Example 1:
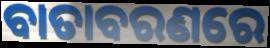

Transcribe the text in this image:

ବାତାବରଣରେ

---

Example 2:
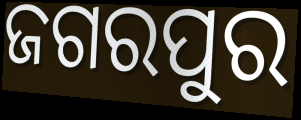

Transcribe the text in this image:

ଜଗରପୁର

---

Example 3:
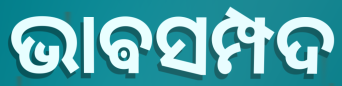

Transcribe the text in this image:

ଭାଵସମ୍ପଦ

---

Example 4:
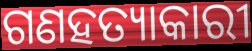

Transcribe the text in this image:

ଗଣହତ୍ୟାକାରୀ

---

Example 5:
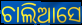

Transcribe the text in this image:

ଚାଲିଆସେ